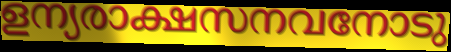
ളന്യരാക്ഷസനവനോടു